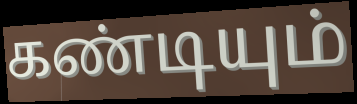
கண்டியும்